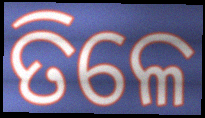
ତିଳେ